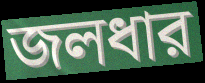
জলধার